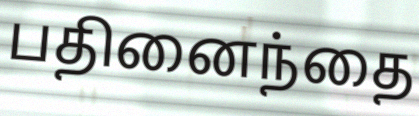
பதினைந்தை